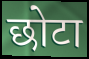
छोटा